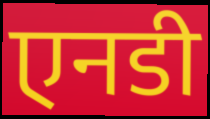
एनडी